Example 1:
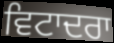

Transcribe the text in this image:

ਵਿਟਾਦਰਾ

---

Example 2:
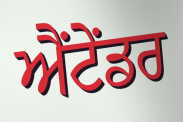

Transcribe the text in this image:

ਐਂਟੇਂਡਰ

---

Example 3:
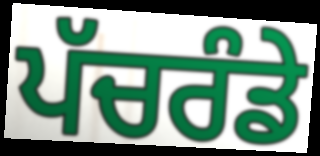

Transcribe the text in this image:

ਪੱਚਰੰਡੇ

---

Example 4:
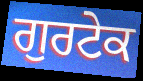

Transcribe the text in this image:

ਗੁਰਟੇਕ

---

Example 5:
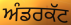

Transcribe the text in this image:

ਅੰਡਰਕੱਟ